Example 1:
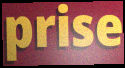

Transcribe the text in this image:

prise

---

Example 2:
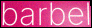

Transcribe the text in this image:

barbel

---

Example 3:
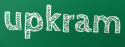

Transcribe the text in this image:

upkram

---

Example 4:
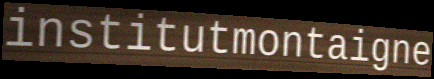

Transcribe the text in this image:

institutmontaigne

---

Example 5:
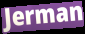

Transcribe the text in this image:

Jerman